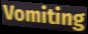
Vomiting